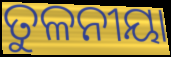
ତୁଳନୀୟା